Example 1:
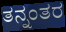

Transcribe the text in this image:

ತನ್ನಂತರ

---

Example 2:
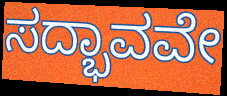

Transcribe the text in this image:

ಸದ್ಭಾವವೇ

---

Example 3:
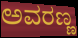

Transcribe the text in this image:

ಅವರಣ್ಣ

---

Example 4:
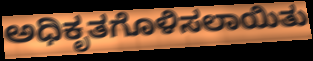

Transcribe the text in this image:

ಅಧಿಕೃತಗೊಳಿಸಲಾಯಿತು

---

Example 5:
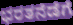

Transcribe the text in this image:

ಭರತನೆಡೆಗೆ